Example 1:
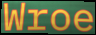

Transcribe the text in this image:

Wroe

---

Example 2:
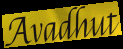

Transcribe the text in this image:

Avadhut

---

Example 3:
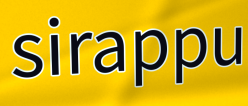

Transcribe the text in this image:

sirappu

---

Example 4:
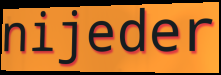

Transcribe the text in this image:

nijeder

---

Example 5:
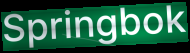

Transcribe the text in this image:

Springbok